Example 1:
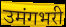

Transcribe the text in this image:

उमंगभरी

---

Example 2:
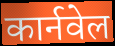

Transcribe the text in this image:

कार्नवेल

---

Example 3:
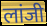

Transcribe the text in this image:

लांजी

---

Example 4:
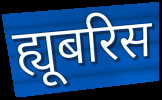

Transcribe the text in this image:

ह्यूबरिस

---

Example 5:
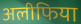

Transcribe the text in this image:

अलीफिया